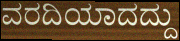
ವರದಿಯಾದದ್ದು